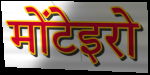
मोंटेइरो